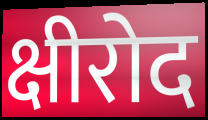
क्षीरोद